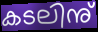
കടലിനു്